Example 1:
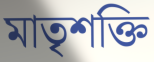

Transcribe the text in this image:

মাতৃশক্তি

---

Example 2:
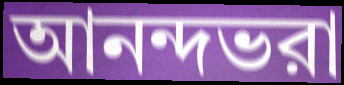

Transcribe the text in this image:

আনন্দভরা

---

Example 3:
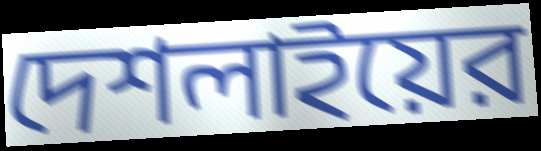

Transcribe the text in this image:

দেশলাইয়ের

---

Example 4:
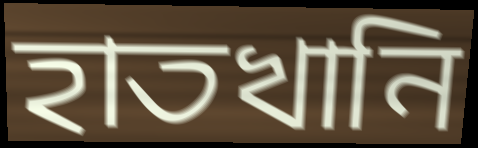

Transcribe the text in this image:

হাতখানি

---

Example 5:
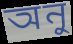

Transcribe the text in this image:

অনু